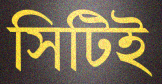
সিটিই